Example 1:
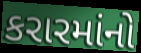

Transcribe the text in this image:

કરારમાંનો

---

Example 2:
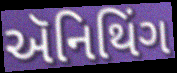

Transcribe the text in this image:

ઍનિથિંગ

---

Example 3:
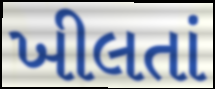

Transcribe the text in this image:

ખીલતાં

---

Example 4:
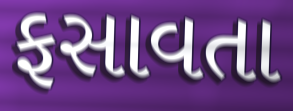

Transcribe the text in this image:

ફસાવતા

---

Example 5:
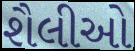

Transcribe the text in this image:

શૈલીઓ